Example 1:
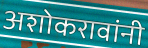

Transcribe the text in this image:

अशोकरावांनी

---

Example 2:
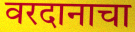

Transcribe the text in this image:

वरदानाचा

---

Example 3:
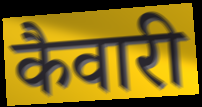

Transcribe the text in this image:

कैवारी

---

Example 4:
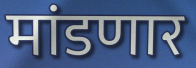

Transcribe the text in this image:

मांडणार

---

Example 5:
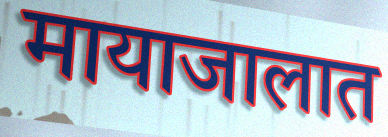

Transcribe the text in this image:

मायाजालात